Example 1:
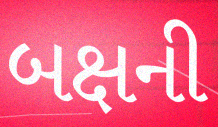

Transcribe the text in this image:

બક્ષની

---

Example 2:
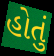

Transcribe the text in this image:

હોતું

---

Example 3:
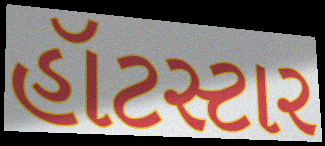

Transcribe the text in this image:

હૉટસ્ટાર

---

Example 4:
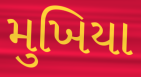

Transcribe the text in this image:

મુખિયા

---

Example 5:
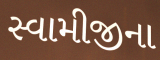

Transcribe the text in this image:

સ્વામીજીના